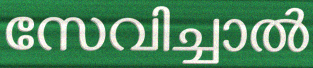
സേവിച്ചാൽ